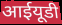
आईयूडी